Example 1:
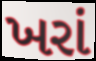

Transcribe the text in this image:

ખરાં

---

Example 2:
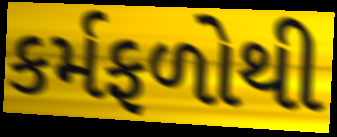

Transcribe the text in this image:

કર્મફળોથી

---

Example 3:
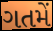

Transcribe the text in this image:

ગતમેં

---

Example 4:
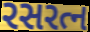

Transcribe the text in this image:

રસરત્ન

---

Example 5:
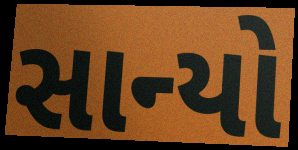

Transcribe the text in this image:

સાન્યો